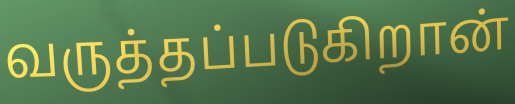
வருத்தப்படுகிறான்